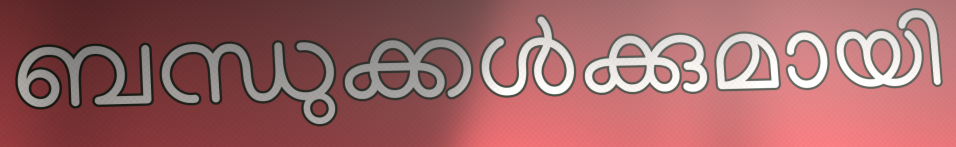
ബന്ധുക്കൾക്കുമായി